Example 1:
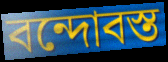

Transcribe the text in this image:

বন্দোবস্ত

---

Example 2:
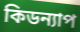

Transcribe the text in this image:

কিডন্যাপ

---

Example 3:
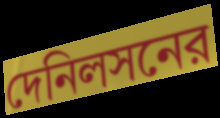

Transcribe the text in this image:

দেনিলসনের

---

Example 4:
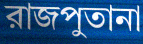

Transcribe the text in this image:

রাজপুতানা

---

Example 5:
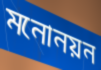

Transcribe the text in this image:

মনোনয়ন